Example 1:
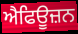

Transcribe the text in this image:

ਐਫਿਊਜ਼ਨ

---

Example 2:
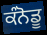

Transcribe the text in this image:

ਕੰਨੋਡੂ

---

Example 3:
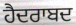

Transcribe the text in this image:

ਹੈਦਰਾਬਦ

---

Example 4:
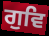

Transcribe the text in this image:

ਗੁਵਿ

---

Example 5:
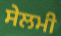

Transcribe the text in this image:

ਸੇਲਮੀ